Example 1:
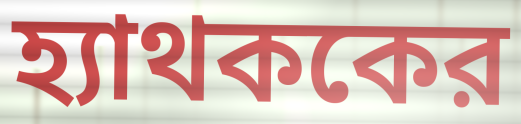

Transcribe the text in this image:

হ্যাথককের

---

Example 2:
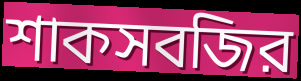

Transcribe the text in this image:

শাকসবজির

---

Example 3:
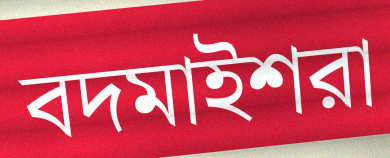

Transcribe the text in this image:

বদমাইশরা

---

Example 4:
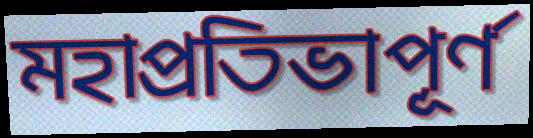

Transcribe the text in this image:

মহাপ্রতিভাপূর্ণ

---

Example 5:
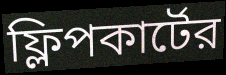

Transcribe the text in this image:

ফ্লিপকার্টের